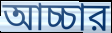
আচ্চার